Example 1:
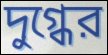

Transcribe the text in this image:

দুগ্ধের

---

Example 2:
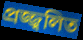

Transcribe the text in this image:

প্রজ্জ্বলিত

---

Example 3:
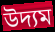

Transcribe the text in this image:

উদ্যম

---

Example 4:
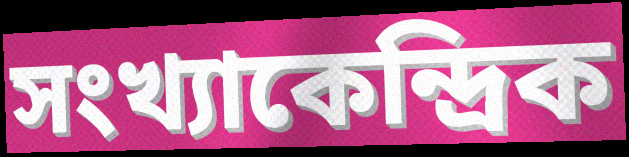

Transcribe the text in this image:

সংখ্যাকেন্দ্রিক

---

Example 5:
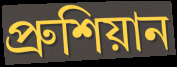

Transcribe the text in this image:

প্রুশিয়ান